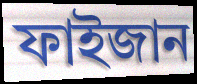
ফাইজান